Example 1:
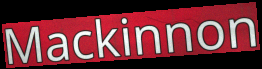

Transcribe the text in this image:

Mackinnon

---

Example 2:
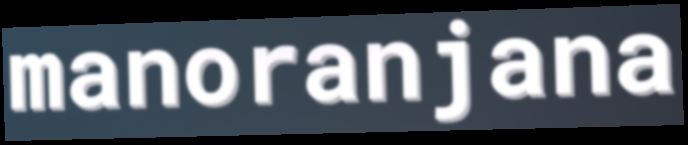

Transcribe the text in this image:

manoranjana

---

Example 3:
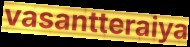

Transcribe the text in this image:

vasantteraiya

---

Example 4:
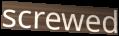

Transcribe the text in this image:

screwed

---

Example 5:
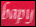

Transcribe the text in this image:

bapy